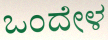
ಒಂದೇಳ